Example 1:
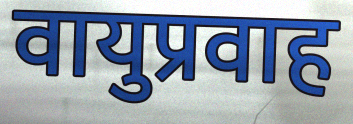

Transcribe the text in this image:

वायुप्रवाह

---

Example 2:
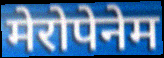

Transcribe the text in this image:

मेरोपेनेम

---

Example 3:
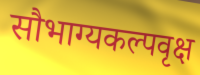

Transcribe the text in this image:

सौभाग्यकल्पवृक्ष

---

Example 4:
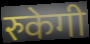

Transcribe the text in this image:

रुकेगी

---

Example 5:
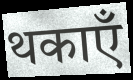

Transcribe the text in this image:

थकाएँ